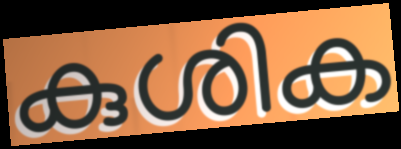
കുശിക